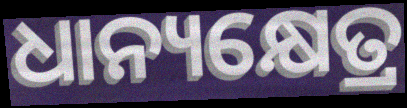
ଧାନ୍ୟକ୍ଷେତ୍ର